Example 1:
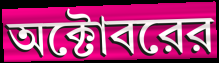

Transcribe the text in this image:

অক্টোবরের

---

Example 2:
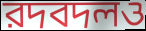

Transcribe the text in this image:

রদবদলও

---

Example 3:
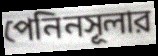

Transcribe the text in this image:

পেনিনসূলার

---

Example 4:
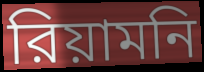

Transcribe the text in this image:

রিয়ামনি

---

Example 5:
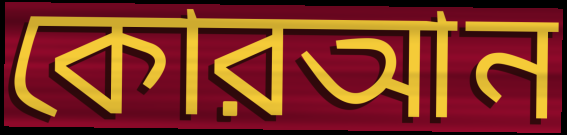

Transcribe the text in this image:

কোরআন